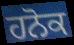
ਹਨੋਕ